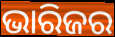
ଭାରିଜର